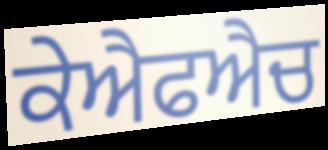
ਕੇਐਫਐਚ